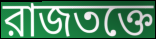
রাজতক্তে